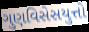
ગુણવિસેસયુત્તો